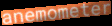
anemometer